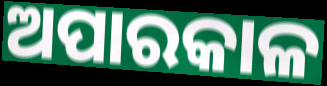
ଅପାରକାଳ